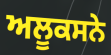
ਅਲੂਕਸਨੇ